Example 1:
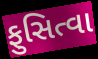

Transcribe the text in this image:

ફુસિત્વા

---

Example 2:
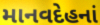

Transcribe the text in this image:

માનવદેહનાં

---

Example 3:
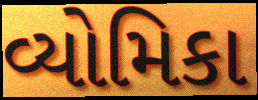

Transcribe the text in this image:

વ્યોમિકા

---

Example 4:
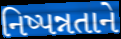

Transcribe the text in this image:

નિષ્પન્નતાને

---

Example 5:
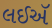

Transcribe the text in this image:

લઈઍ